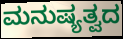
ಮನುಷ್ಯತ್ವದ